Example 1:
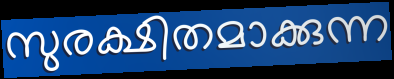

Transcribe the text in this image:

സുരക്ഷിതമാക്കുന്ന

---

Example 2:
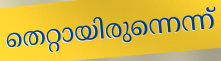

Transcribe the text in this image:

തെറ്റായിരുന്നെന്ന്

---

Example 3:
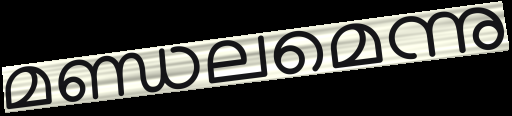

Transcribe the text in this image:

മണ്ഡലമെന്നു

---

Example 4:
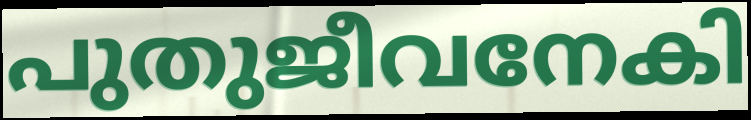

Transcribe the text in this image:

പുതുജീവനേകി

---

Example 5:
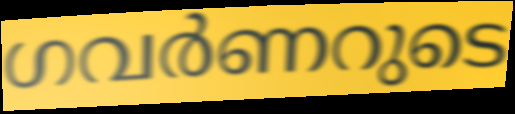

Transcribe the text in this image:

ഗവർണറുടെ